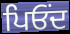
ਪਿਓਂਦ